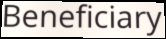
Beneficiary